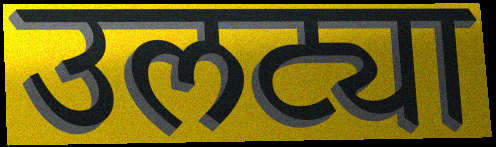
उलट्या